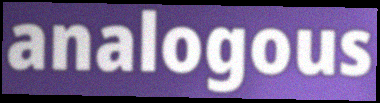
analogous